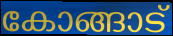
കോങ്ങാട്